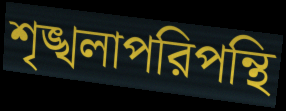
শৃঙ্খলাপরিপন্থি